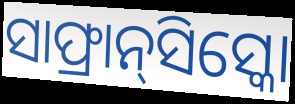
ସାଫ୍ରାନ୍‌ସିସ୍କୋ